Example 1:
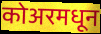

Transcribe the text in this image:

कोअरमधून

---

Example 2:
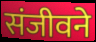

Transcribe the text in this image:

संजीवने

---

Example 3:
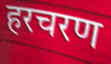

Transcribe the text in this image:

हरचरण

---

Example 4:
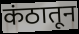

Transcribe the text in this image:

कंठातून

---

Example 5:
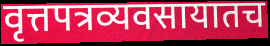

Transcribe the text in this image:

वृत्तपत्रव्यवसायातच